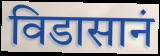
विडासानं